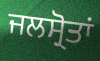
ਜਲਸ੍ਰੋਤਾਂ